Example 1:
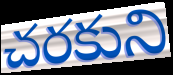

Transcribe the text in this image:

చరకుని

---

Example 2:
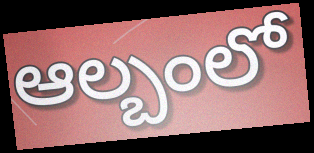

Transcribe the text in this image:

ఆల్బంలో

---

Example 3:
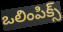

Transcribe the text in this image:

ఒలింపిక్స్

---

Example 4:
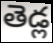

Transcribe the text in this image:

తెడ్ల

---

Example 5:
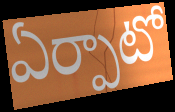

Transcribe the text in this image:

ఏర్పాటో